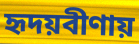
হৃদয়বীণায়